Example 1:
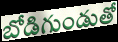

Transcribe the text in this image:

బోడిగుండుతో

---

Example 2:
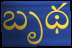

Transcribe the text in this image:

బృథ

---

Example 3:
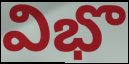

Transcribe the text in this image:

విభొ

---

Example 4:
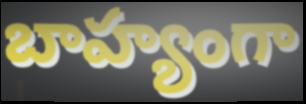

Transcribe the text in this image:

బాహ్యంగా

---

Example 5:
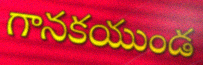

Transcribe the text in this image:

గానకయుండ